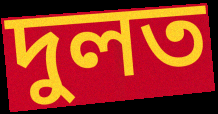
দুলত